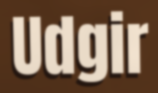
Udgir